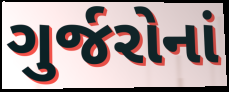
ગુર્જરોનાં